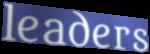
leaders